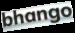
bhango